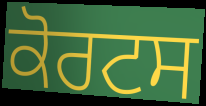
ਕੋਰਟਸ